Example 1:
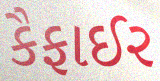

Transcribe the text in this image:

કૈફાઈર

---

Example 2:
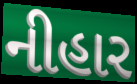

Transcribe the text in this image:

નીહાર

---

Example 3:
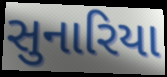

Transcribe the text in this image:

સુનારિયા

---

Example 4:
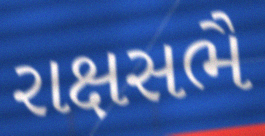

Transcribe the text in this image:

રાક્ષસભૈ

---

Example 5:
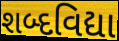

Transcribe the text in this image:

શબ્દવિદ્યા